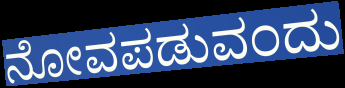
ನೋವಪಡುವಂದು